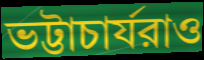
ভট্টাচার্যরাও